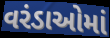
વરંડાઓમાં